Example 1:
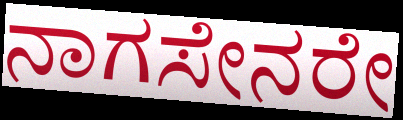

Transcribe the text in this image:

ನಾಗಸೇನರೇ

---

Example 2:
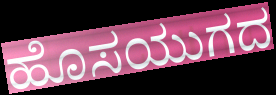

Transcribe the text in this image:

ಹೊಸಯುಗದ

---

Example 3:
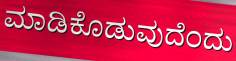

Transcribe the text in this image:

ಮಾಡಿಕೊಡುವುದೆಂದು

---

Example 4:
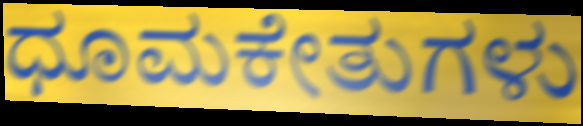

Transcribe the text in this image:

ಧೂಮಕೇತುಗಳು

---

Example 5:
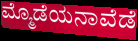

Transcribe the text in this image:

ಮ್ಮೊಡೆಯನಾವೆಡೆ